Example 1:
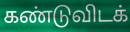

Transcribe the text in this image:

கண்டுவிடக்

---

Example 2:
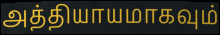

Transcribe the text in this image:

அத்தியாயமாகவும்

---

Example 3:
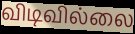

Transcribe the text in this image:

விடிவில்லை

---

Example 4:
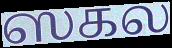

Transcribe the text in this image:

ஸகல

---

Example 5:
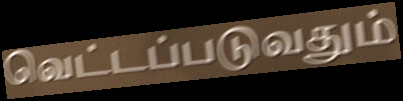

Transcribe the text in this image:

வெட்டப்படுவதும்